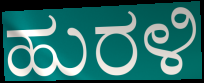
ಹುರಳಿ